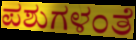
ಪಶುಗಳಂತೆ